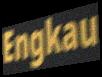
Engkau